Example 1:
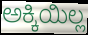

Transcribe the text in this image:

ಅಕ್ಕಿಯಿಲ್ಲ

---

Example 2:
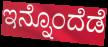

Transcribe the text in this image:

ಇನ್ನೊಂದೆಡೆ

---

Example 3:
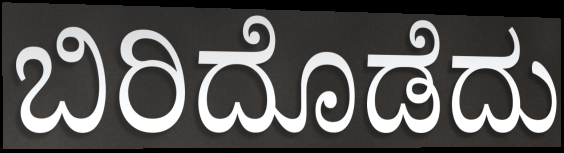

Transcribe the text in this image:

ಬಿರಿದೊಡೆದು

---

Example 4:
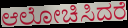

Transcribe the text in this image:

ಆಲೋಚಿಸಿದರೆ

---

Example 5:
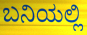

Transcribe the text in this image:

ಬನಿಯಲ್ಲಿ